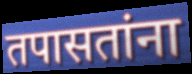
तपासतांना